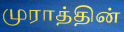
முராத்தின்